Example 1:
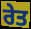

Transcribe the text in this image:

ਰੇਤ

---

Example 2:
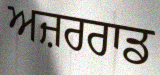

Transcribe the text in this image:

ਅਜ਼ਰਰਾਡ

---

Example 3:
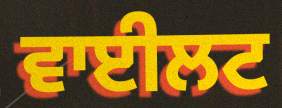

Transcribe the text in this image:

ਵਾਈਲਟ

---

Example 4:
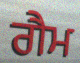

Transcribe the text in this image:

ਗੈਮ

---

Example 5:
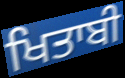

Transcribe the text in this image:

ਖਿਤਾਬੀ